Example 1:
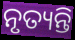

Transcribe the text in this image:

ନୃତ୍ୟନ୍ତି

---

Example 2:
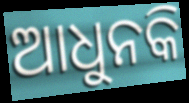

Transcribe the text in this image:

ଆଧୁନକି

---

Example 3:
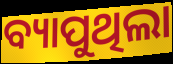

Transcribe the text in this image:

ବ୍ୟାପୁଥିଲା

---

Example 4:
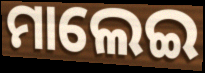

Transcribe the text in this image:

ମାଲେଇ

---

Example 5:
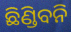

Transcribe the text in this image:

ଛିଣ୍ଡିବନି